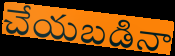
చేయబడినా